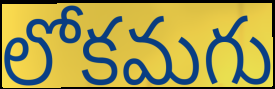
లోకమగు